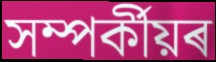
সম্পৰ্কীয়ৰ